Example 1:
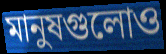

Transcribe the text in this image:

মানুষগুলোও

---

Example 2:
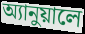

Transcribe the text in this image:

অ্যানুয়ালে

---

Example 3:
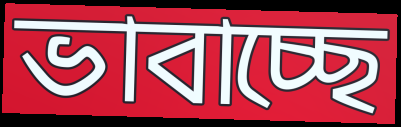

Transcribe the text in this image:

ভাবাচ্ছে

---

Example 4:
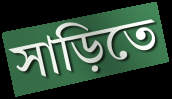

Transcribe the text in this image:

সাড়িতে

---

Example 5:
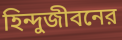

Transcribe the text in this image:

হিন্দুজীবনের